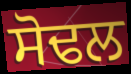
ਸੋਢਲ